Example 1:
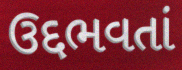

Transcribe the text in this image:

ઉદ્દભવતાં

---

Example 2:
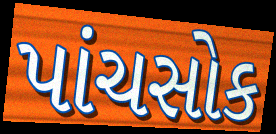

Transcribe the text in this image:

પાંચસોક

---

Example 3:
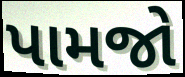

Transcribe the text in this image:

પામજો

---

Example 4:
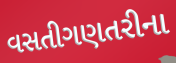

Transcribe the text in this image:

વસતીગણતરીના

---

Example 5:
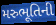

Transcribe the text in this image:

મરુભૂતિની